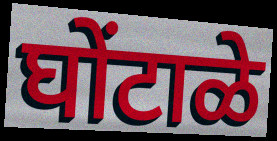
घोंटाळे